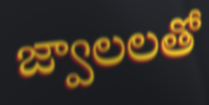
జ్వాలలతో